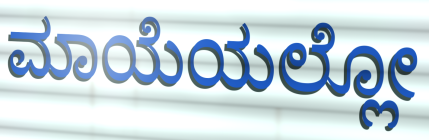
ಮಾಯೆಯಲ್ಲೋ